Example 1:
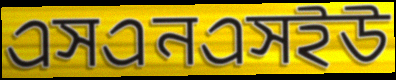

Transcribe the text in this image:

এসএনএসইউ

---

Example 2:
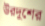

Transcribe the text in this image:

উরদূশের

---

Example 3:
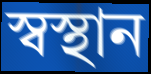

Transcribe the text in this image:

স্বস্থান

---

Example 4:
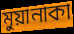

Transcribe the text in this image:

মুয়ানাকা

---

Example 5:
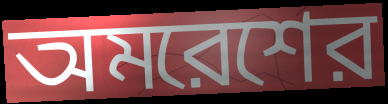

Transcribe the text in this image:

অমরেশের